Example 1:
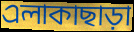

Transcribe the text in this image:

এলাকাছাড়া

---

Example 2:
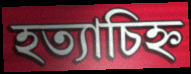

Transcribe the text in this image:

হত্যাচিহ্ন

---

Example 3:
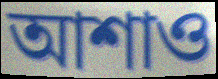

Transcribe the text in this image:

আশাও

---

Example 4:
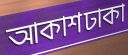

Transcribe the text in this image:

আকাশঢাকা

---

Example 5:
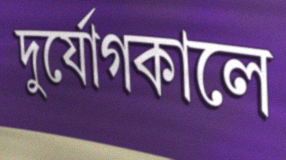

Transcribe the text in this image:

দুর্যোগকালে